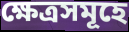
ক্ষেত্ৰসমূহে